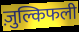
ज़ुल्किफली